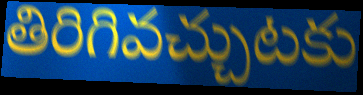
తిరిగివచ్చుటకు